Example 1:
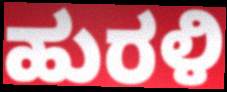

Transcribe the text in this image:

ಹುರಳಿ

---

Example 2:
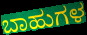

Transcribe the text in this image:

ಬಾಹುಗಳ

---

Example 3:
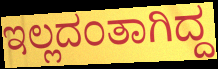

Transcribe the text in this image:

ಇಲ್ಲದಂತಾಗಿದ್ದ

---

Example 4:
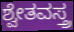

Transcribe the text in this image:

ಶ್ವೇತವಸ್ತ್ರ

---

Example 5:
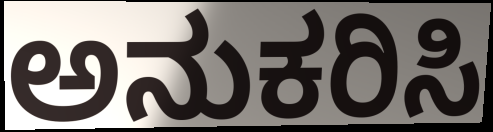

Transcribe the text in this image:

ಅನುಕರಿಸಿ